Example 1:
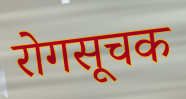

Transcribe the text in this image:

रोगसूचक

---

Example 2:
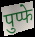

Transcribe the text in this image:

पुप्फे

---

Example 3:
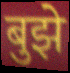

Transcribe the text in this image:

बुझे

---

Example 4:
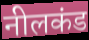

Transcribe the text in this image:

नीलकंड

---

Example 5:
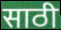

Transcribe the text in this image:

साठी